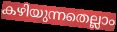
കഴിയുന്നതെല്ലാം